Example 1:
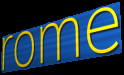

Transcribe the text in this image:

rome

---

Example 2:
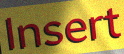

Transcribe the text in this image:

Insert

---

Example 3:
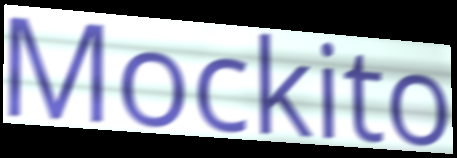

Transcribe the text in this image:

Mockito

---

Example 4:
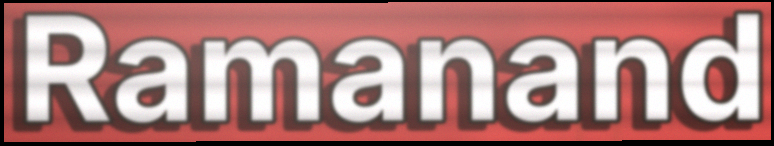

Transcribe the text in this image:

Ramanand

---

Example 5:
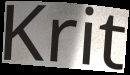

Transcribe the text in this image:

Krit